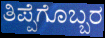
ತಿಪ್ಪೆಗೊಬ್ಬರ